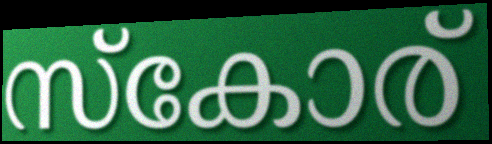
സ്കോര്